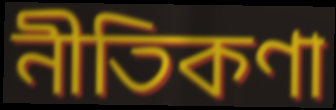
নীতিকণা